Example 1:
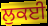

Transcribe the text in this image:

ਲੁਕਈ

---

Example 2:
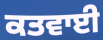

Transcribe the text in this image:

ਕਤਵਾਈ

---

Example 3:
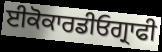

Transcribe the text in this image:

ਈਕੋਕਾਰਡੀਓਗ੍ਰਾਫੀ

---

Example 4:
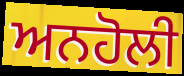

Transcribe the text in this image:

ਅਨਹੋਲੀ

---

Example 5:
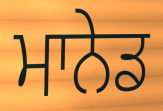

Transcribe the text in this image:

ਮਾਨੇਡ